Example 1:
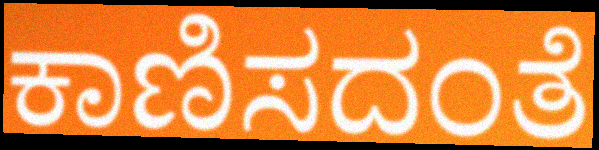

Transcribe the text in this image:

ಕಾಣಿಸದಂತೆ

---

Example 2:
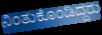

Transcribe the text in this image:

ನಿಂತುಕೊಂಡಿದ್ದರು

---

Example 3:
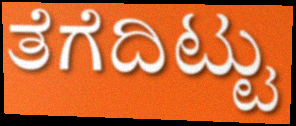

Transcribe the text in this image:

ತೆಗೆದಿಟ್ಟು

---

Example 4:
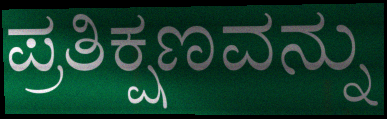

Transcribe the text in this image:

ಪ್ರತಿಕ್ಷಣವನ್ನು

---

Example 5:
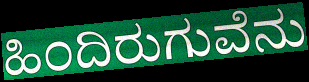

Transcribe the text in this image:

ಹಿಂದಿರುಗುವೆನು